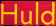
Huld